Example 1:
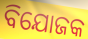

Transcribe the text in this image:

ବିଯୋଜକ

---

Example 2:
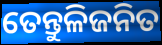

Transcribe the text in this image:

ତେନ୍ତୁଳିଜନିତ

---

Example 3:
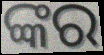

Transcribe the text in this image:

ଙ୍କର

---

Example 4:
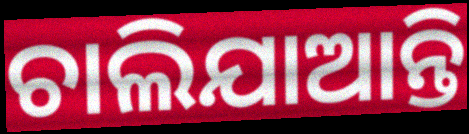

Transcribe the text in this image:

ଚାଲିଯାଆନ୍ତି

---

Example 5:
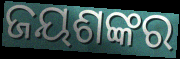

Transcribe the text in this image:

ଜୟଶଙ୍କର